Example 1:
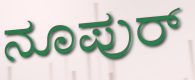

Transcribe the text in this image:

ನೂಪುರ್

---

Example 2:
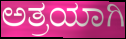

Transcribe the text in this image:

ಅತ್ರಯಾಗಿ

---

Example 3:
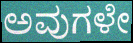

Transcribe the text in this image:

ಅವುಗಳೇ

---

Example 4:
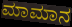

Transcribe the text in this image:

ಮಾಮಾನ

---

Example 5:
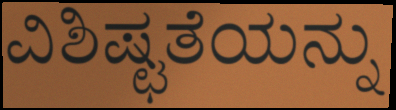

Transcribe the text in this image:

ವಿಶಿಷ್ಟತೆಯನ್ನು